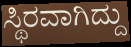
ಸ್ಥಿರವಾಗಿದ್ದು